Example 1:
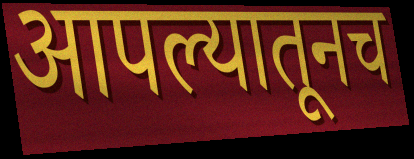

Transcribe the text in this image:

आपल्यातूनच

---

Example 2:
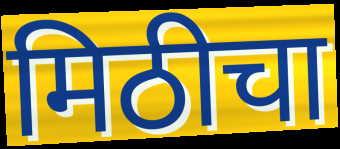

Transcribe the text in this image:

मिठीचा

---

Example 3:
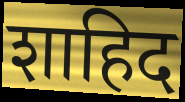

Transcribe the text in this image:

शाहिद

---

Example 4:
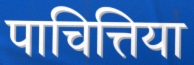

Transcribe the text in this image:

पाचित्तिया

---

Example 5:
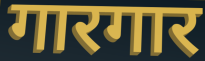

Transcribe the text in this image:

गारगार